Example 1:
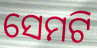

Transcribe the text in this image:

ସେମଟି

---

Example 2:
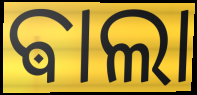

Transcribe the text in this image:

ଵାଲା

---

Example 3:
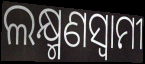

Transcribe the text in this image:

ଲକ୍ଷ୍ମଣସ୍ଵାମୀ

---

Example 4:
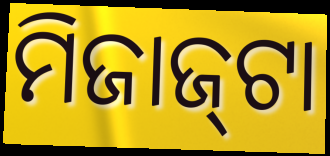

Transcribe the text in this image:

ମିଜାଜ୍‌ଟା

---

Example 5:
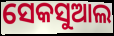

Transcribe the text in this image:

ସେକସୁଆଲ